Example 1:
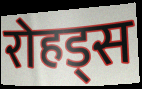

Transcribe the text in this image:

रोहड्स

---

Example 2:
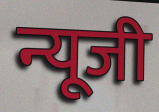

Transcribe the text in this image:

न्यूजी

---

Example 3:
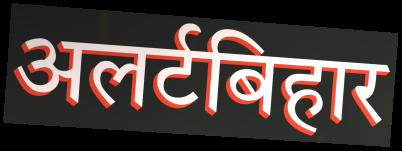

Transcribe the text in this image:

अलर्टबिहार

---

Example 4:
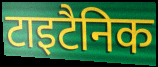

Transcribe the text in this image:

टाइटैनिक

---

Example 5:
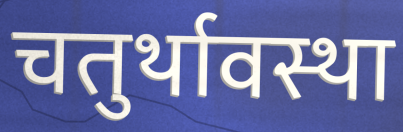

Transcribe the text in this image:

चतुर्थावस्था